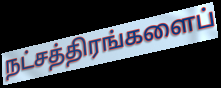
நட்சத்திரங்களைப்